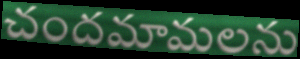
చందమామలను